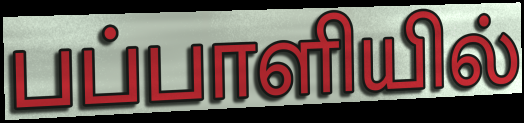
பப்பாளியில்